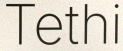
Tethi